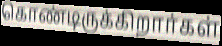
கொண்டிருக்கிறார்கள்